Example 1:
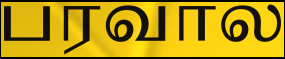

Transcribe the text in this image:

பரவால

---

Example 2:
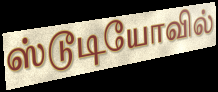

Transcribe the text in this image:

ஸ்டூடியோவில்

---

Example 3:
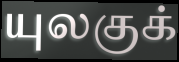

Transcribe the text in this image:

யுலகுக்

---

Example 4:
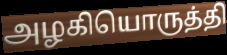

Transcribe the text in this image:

அழகியொருத்தி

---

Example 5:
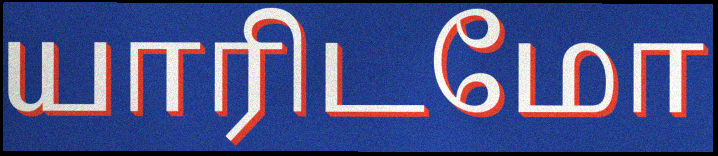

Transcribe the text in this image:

யாரிடமோ